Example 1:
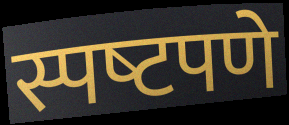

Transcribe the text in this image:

स्‍पष्‍टपणे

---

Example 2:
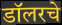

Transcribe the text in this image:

डॉलरचे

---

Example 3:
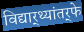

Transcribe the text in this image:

विद्यार्थ्यांतर्फे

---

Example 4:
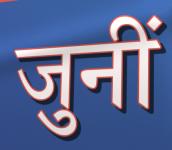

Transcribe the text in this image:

जुनीं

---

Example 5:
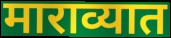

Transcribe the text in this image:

माराव्यात